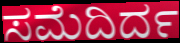
ಸಮೆದಿರ್ದ